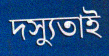
দস্যুতাই